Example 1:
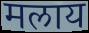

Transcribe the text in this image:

मलाय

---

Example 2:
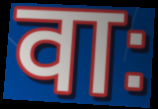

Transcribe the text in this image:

वाः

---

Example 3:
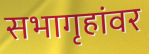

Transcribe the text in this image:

सभागृहांवर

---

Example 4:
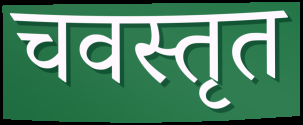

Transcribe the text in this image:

चवस्तृत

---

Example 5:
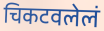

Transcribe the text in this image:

चिकटवलेलं